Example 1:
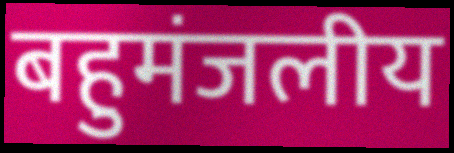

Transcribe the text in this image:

बहुमंजलीय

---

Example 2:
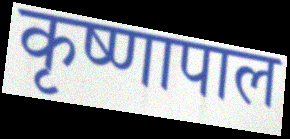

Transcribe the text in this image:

कृष्णापाल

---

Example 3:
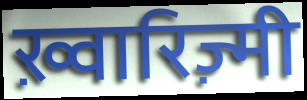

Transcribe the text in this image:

ख़्वारिज़्मी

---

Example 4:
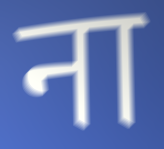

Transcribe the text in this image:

ना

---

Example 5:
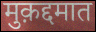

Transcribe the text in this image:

मुक़द्दमात